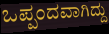
ಒಪ್ಪಂದವಾಗಿದ್ದು